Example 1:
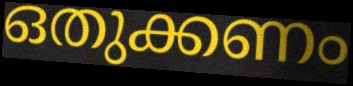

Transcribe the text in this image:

ഒതുക്കണം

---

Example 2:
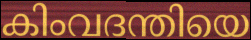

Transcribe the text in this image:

കിംവദന്തിയെ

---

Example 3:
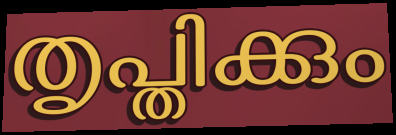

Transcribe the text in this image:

തൃപ്തിക്കും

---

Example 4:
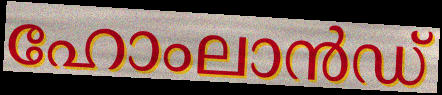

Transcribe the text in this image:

ഹോംലാൻഡ്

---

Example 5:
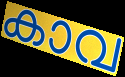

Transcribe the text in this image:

കാവ